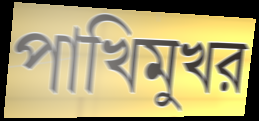
পাখিমুখর